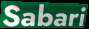
Sabari